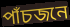
পাঁচজনে